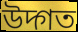
উদ্গত